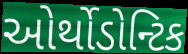
ઓર્થોડોન્ટિક